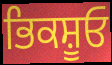
ਭਿਕਸ਼ੂਓ